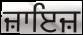
ਜ਼ਾਇਜ਼